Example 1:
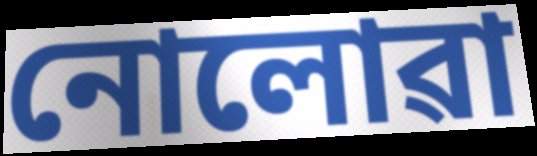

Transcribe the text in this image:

নোলোৱা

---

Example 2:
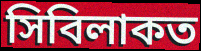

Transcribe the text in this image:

সিবিলাকত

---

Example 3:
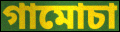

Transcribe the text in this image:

গামোচা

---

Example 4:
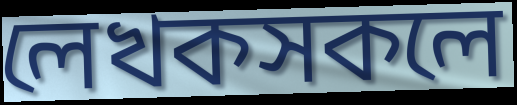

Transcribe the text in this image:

লেখকসকলে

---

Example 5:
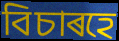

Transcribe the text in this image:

বিচাৰহে